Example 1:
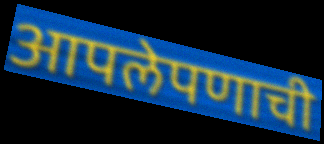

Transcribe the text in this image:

आपलेपणाची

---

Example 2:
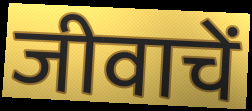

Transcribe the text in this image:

जीवाचें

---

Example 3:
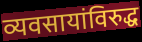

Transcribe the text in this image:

व्यवसायांविरुद्ध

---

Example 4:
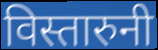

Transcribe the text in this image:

विस्तारुनी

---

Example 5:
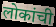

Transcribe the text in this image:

लोकांची